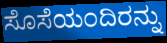
ಸೊಸೆಯಂದಿರನ್ನು